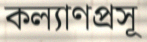
কল্যাণপ্রসূ